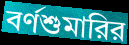
বর্ণশুমারির